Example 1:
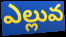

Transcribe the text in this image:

ఎల్లువ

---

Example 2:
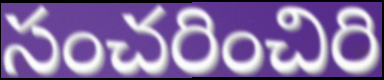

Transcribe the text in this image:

సంచరించిరి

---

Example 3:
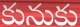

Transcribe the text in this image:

కునుకు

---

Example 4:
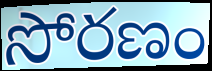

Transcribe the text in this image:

సోరణం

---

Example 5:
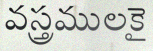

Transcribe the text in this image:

వస్త్రములకై